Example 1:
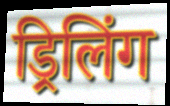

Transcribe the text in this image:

ड्रिलिंग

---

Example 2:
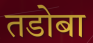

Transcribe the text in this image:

तडोबा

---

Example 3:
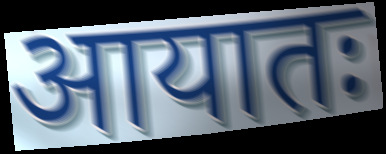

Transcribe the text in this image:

आयातः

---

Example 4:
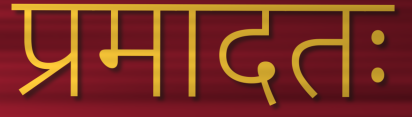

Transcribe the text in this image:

प्रमादतः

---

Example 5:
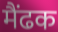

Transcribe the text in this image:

मैंढक